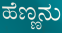
ಹೆಣ್ಣನು